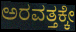
ಅರವತ್ತಕ್ಕೇ